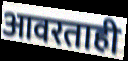
आवरताही